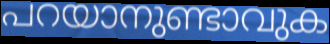
പറയാനുണ്ടാവുക